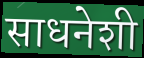
साधनेशी